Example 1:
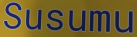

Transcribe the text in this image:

Susumu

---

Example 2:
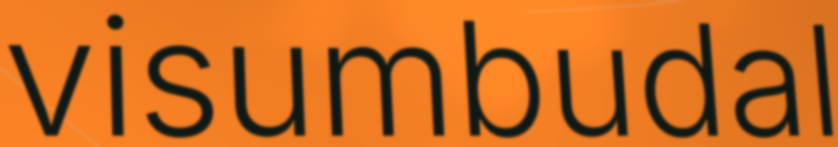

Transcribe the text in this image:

visumbudal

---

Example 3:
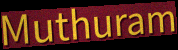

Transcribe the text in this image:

Muthuram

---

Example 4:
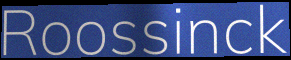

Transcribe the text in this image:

Roossinck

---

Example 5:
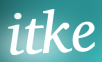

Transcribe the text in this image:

itke